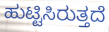
ಹುಟ್ಟಿಸಿರುತ್ತದೆ